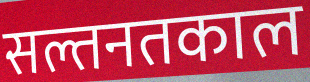
सल्तनतकाल